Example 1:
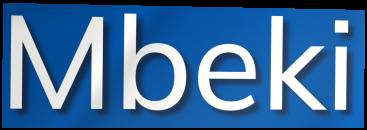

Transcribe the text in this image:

Mbeki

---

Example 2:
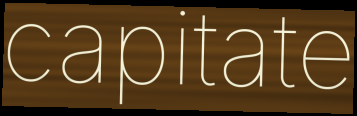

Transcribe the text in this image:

capitate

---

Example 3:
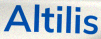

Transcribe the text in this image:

Altilis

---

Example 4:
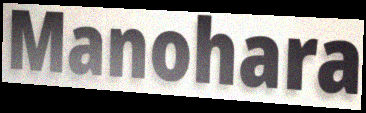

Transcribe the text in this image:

Manohara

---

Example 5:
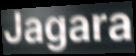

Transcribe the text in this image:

Jagara